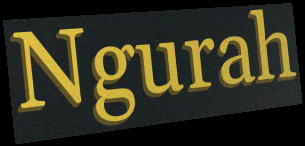
Ngurah